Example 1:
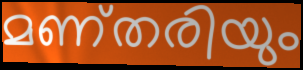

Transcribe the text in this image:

മണ്തരിയും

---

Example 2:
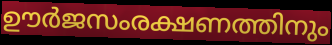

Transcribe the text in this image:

ഊർജസംരക്ഷണത്തിനും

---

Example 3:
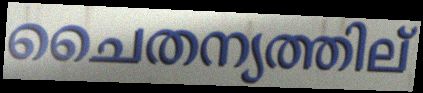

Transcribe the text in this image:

ചൈതന്യത്തില്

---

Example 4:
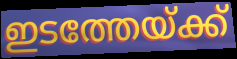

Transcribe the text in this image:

ഇടത്തേയ്ക്ക്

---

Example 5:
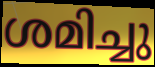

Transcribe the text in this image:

ശമിച്ചു